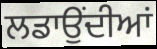
ਲਡਾਉਂਦੀਆਂ